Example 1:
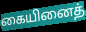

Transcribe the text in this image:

கையினைத்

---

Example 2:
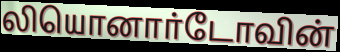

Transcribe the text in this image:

லியொனார்டோவின்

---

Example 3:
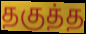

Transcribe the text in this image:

தகுத்த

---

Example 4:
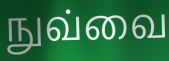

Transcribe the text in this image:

நுவ்வை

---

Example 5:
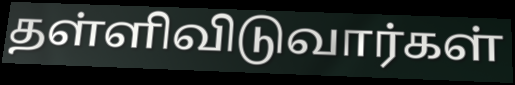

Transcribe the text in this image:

தள்ளிவிடுவார்கள்